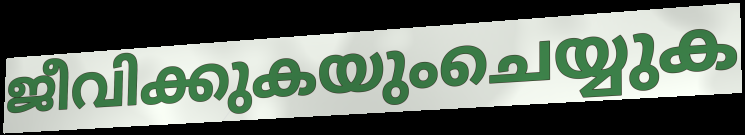
ജീവിക്കുകയുംചെയ്യുക